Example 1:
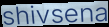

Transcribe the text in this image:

shivsena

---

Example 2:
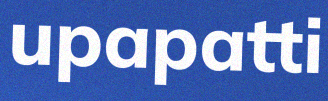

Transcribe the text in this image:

upapatti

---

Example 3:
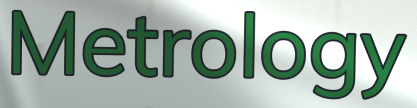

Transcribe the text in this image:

Metrology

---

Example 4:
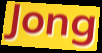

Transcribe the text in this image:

Jong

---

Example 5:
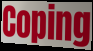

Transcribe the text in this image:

Coping